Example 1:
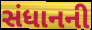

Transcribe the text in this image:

સંધાનની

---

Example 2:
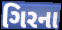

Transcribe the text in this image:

ગિરના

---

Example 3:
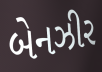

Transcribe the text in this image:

બેનઝીર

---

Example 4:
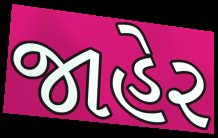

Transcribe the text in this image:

જાહેર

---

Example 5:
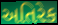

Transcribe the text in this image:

અતિરેક